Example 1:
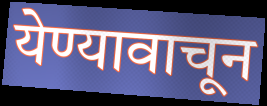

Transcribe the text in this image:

येण्यावाचून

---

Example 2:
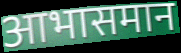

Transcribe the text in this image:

आभासमान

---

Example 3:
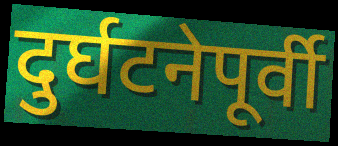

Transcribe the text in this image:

दुर्घटनेपूर्वी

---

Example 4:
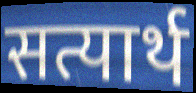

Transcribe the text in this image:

सत्यार्थ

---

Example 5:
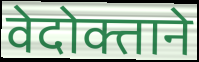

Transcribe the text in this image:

वेदोक्ताने